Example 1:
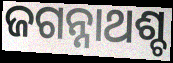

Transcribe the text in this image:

ଜଗନ୍ନାଥଶ୍ଚ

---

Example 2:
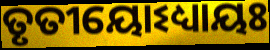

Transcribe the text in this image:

ତୃତୀୟୋଽଧ୍ୟାୟଃ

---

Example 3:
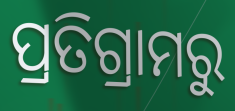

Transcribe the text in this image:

ପ୍ରତିଗ୍ରାମରୁ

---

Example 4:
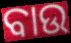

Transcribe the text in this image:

ବାଉ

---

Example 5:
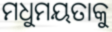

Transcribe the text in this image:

ମଧୁମୟତାକୁ